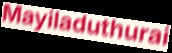
Mayiladuthurai